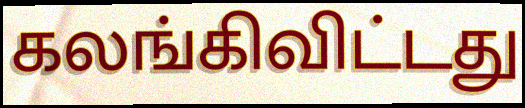
கலங்கிவிட்டது